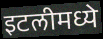
इटलीमध्ये